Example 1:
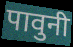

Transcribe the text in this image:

पावुनी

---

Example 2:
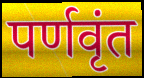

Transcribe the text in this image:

पर्णवृंत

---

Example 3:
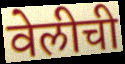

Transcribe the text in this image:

वेलीची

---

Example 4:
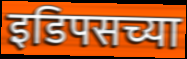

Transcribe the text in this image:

इडिपसच्या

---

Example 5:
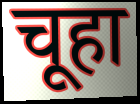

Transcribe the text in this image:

चूहा